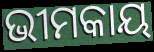
ଭୀମକାୟ